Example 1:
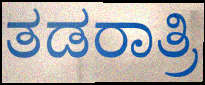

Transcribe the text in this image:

ತಡರಾತ್ರಿ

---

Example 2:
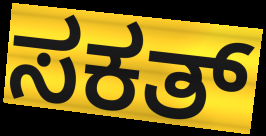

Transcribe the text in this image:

ಸಕತ್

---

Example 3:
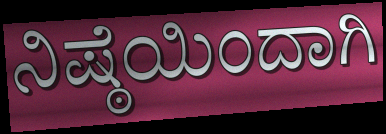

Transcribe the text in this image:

ನಿಷ್ಠೆಯಿಂದಾಗಿ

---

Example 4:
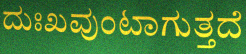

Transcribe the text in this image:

ದುಃಖವುಂಟಾಗುತ್ತದೆ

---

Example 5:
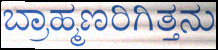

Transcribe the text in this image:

ಬ್ರಾಹ್ಮಣರಿಗಿತ್ತನು